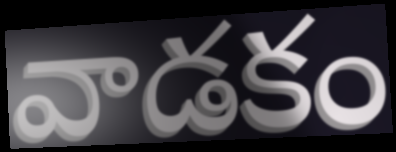
వాడకం